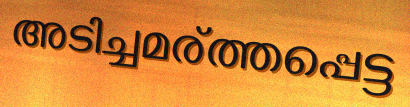
അടിച്ചമര്ത്തപ്പെട്ട